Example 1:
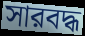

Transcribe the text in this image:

সারবদ্ধ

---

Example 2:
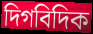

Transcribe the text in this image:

দিগবিদিক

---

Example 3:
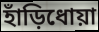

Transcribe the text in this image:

হাঁড়িধোয়া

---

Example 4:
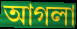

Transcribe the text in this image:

আগলা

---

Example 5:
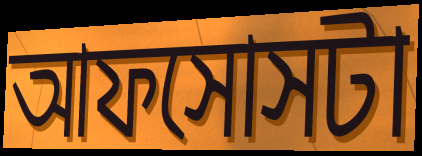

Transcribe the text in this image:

আফসোসটা